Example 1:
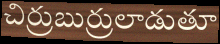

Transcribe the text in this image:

చిర్రుబుర్రులాడుతూ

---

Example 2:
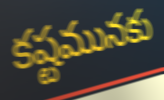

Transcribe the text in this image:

కష్టమునకు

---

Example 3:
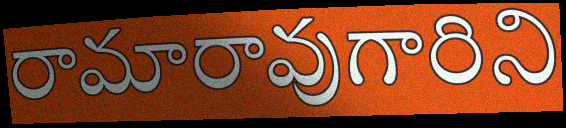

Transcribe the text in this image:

రామారావుగారిని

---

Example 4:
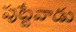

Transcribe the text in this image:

పుట్టేవాడు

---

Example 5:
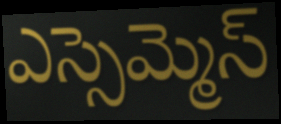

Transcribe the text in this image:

ఎస్సెమ్మెస్